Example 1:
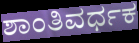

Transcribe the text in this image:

ಶಾಂತಿವರ್ಧಕ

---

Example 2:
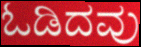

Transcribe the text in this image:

ಓಡಿದವು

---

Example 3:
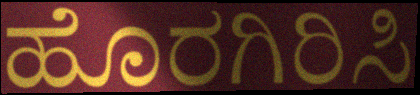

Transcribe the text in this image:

ಹೊರಗಿರಿಸಿ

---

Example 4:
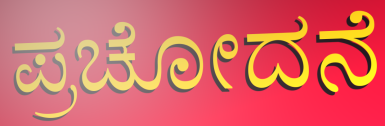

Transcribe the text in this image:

ಪ್ರಚೋದನೆ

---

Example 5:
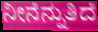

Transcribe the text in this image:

ನೀನೆನ್ನುತಿದೆ